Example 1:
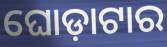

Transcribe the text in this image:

ଘୋଡ଼ାଟାର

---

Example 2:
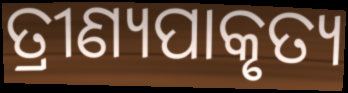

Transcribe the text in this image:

ତ୍ରୀଣ୍ୟପାକୃତ୍ୟ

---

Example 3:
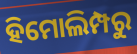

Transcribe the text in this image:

ହିମୋଲିମ୍ପରୁ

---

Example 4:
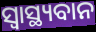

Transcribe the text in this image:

ସ୍ୱାସ୍ଥ୍ୟବାନ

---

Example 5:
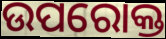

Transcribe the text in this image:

ଉପରୋକ୍ତ